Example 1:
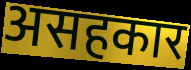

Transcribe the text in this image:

असहकार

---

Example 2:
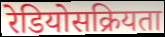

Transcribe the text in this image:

रेडियोसक्रियता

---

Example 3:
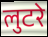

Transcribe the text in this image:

लुटरे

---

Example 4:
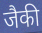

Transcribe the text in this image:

जैकी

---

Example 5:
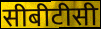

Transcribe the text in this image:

सीबीटीसी